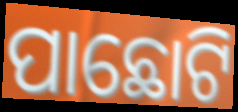
ପାଛୋଟି